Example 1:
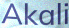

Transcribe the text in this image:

Akali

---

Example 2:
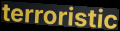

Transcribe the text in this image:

terroristic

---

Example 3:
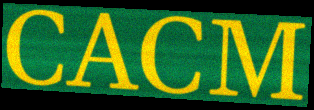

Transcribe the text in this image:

CACM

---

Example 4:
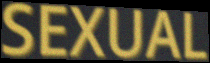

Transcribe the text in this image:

SEXUAL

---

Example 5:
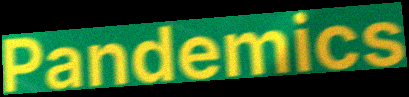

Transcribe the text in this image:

Pandemics